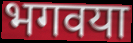
भगवया